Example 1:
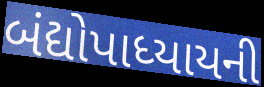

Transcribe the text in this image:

બંદ્યોપાધ્યાયની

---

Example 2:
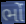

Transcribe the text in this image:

ભોં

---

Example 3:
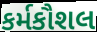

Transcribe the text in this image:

કર્મકૌશલ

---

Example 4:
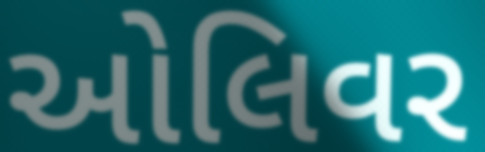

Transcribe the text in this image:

ઓલિવર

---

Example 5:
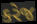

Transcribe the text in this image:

કરેજ